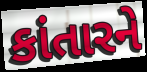
કાંતારને